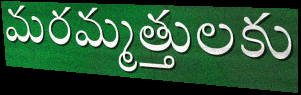
మరమ్మత్తులకు